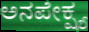
ಅನಪೇಕ್ಷ್ಯ